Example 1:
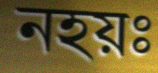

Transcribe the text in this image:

নহয়ঃ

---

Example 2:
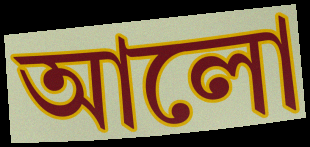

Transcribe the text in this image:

আলো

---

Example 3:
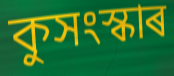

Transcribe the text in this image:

কুসংস্কাৰ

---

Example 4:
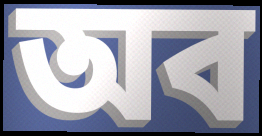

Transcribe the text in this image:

অব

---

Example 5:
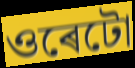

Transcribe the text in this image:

ওৰেটো